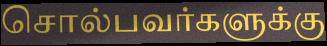
சொல்பவர்களுக்கு